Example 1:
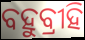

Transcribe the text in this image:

ବହୁବ୍ରୀହି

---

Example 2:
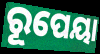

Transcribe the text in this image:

ରୂପେୟା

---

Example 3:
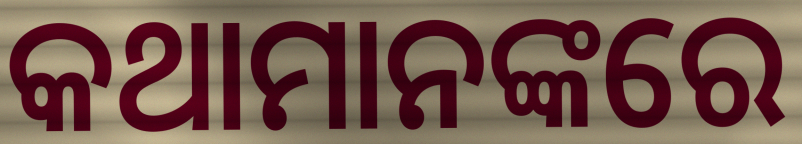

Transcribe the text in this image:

କଥାମାନଙ୍କରେ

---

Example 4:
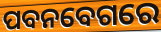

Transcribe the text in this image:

ପବନବେଗରେ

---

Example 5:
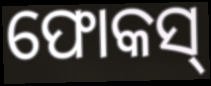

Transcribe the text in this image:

ଫୋକସ୍